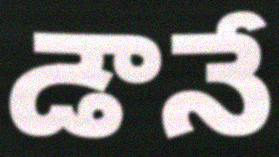
డౌనే